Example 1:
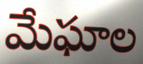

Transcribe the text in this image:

మేఘాల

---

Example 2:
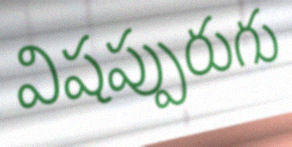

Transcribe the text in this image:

విషప్పురుగు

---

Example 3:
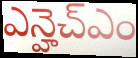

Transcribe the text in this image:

ఎన్హెచ్ఎం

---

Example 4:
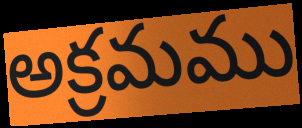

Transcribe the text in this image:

అక్రమము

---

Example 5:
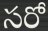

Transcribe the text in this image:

సరో